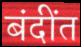
बंदींत